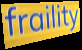
fraility